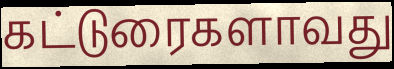
கட்டுரைகளாவது